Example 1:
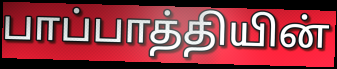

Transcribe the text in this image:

பாப்பாத்தியின்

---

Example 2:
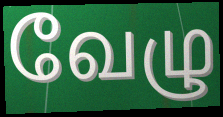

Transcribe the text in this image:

வேழு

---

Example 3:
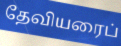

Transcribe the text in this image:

தேவியரைப்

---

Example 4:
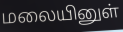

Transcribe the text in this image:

மலையினுள்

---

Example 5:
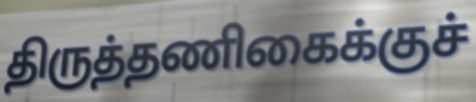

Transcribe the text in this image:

திருத்தணிகைக்குச்